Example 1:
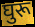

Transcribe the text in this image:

घुरू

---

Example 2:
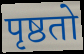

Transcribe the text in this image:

पृष्ठतो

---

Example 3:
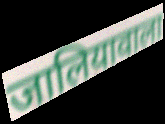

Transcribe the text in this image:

जालियावाला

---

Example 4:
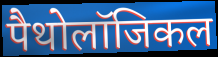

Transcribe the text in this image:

पैथोलॉजिकल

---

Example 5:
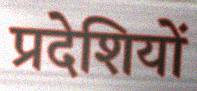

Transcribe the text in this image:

प्रदेशियों